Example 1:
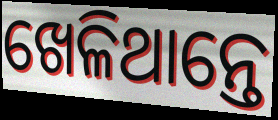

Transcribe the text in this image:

ଖେଳିଥାନ୍ତେ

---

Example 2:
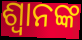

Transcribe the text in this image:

ଶ୍ବାନଙ୍କ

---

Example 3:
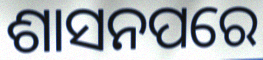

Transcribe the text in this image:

ଶାସନପରେ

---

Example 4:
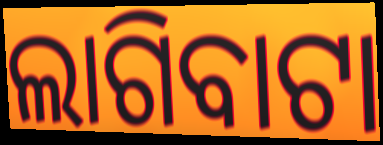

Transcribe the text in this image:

ଲାଗିବାଟା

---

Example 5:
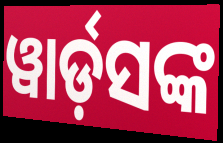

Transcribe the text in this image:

ୱାର୍ଡ଼ସଙ୍କ